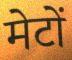
मेटों